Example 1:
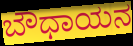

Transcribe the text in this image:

ಬೌಧಾಯನ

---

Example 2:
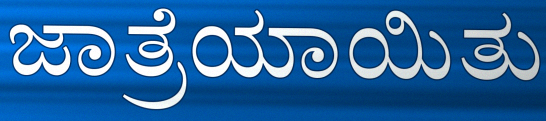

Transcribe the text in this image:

ಜಾತ್ರೆಯಾಯಿತು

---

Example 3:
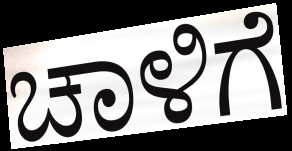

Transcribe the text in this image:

ಚಾಳಿಗೆ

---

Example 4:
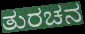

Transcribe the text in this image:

ತುರಚನ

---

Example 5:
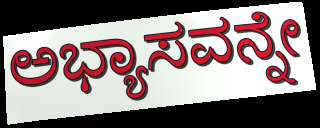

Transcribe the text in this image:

ಅಭ್ಯಾಸವನ್ನೇ